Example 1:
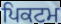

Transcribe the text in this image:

ਪਿਕਟਮ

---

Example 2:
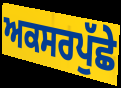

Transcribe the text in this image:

ਅਕਸਰਪੁੱਛੇ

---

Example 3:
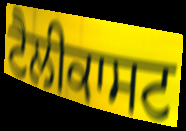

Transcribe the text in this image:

ਟੈਲੀਕਾਸਟ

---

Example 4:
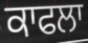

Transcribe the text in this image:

ਕਾਫਲਾ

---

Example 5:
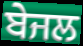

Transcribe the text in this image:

ਬੇਜਲ